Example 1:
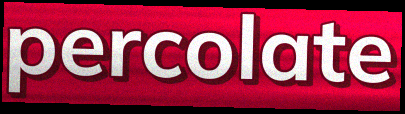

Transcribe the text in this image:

percolate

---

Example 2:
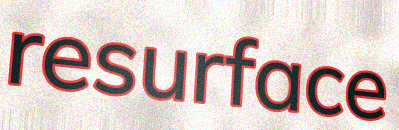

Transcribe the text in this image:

resurface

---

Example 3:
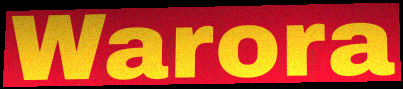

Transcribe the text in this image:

Warora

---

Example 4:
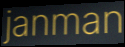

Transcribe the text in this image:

janman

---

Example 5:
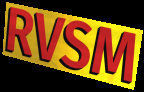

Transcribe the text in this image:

RVSM